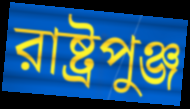
রাষ্ট্রপুঞ্জ